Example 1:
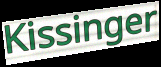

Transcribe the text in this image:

Kissinger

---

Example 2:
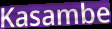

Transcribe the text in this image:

Kasambe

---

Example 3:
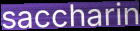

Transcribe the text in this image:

saccharin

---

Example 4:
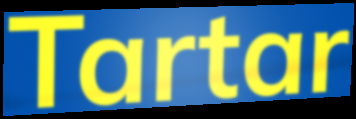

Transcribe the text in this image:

Tartar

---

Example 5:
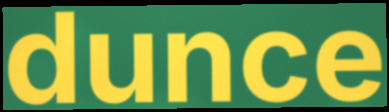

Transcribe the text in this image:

dunce